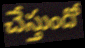
చేస్తుందో